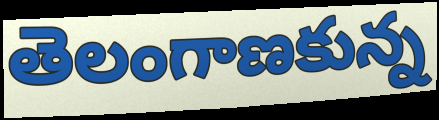
తెలంగాణకున్న